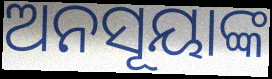
ଅନସୂୟାଙ୍କ